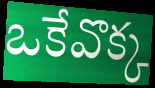
ఒకేవొక్క